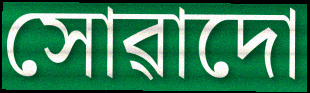
সোৱাদো